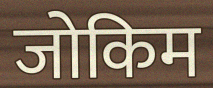
जोकिम